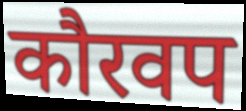
कौरवप